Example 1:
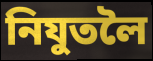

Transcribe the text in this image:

নিযুতলৈ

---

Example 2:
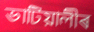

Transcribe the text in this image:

ভাটিয়ালীৰ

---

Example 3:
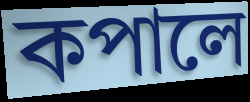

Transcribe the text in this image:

কপালে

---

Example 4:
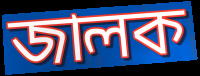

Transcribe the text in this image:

জালক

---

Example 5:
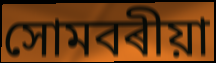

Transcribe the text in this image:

সোমবৰীয়া